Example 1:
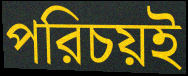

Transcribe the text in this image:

পরিচয়ই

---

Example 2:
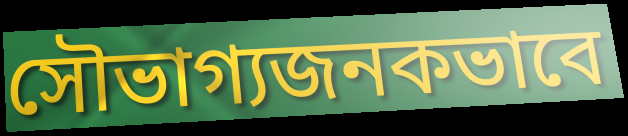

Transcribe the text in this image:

সৌভাগ্যজনকভাবে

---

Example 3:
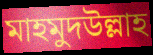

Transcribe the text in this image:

মাহমুদউল্লাহ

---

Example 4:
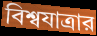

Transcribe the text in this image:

বিশ্বযাত্রার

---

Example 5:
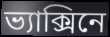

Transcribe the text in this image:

ভ্যাক্সিনে